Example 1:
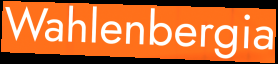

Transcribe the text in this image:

Wahlenbergia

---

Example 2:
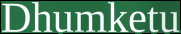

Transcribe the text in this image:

Dhumketu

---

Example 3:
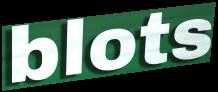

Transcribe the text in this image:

blots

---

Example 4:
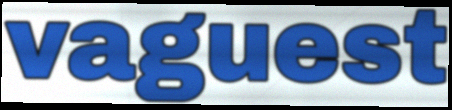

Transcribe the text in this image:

vaguest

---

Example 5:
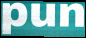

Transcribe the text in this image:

pun